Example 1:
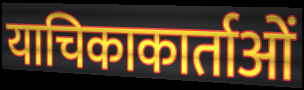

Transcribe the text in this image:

याचिकाकार्ताओं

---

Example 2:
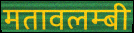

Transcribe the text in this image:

मतावलम्बी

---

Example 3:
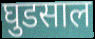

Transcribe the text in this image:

घुडसाल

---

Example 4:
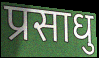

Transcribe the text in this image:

प्रसाधु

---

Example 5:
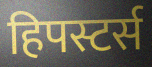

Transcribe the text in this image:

हिपस्टर्स